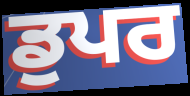
ਡੁਪਰ